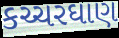
કચ્ચરઘાણ